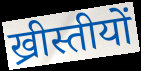
ख्रीस्तीयों